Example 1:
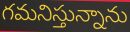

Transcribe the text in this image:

గమనిస్తున్నాను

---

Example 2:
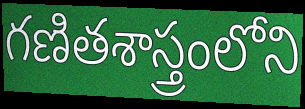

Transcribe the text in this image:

గణితశాస్త్రంలోని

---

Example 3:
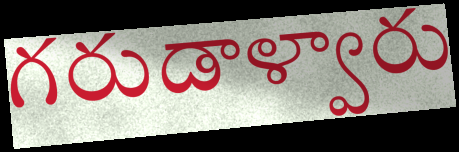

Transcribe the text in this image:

గరుడాళ్వారు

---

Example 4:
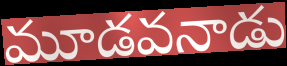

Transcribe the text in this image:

మూడవనాడు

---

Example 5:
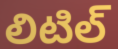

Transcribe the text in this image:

లిటిల్